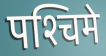
पश्चिमे